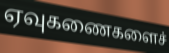
ஏவுகணைகளைச்